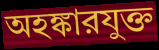
অহঙ্কারযুক্ত